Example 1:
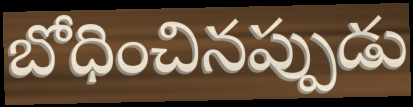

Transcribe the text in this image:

బోధించినప్పుడు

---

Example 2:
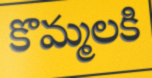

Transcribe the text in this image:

కొమ్మలకి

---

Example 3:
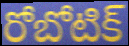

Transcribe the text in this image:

రోబోటిక్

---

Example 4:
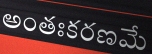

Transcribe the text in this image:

అంతఃకరణమే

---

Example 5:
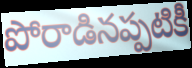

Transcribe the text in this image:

పోరాడినప్పటికీ